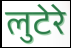
लुटेरे